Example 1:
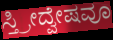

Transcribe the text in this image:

ಸ್ತ್ರೀದ್ವೇಷವೂ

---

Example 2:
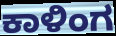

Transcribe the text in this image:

ಕಾಳಿಂಗ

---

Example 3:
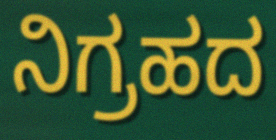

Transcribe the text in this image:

ನಿಗ್ರಹದ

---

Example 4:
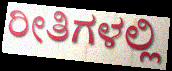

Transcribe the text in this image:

ರೀತಿಗಳಲ್ಲಿ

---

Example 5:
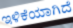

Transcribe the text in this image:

ಇಳಿಕೆಯಾಗಿದೆ